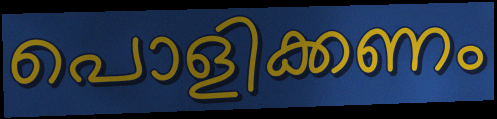
പൊളിക്കണം